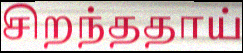
சிறந்ததாய்